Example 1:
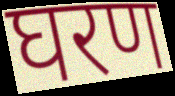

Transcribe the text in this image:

घरण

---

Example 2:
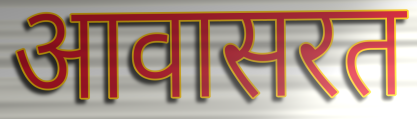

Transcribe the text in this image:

आवासरत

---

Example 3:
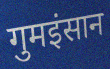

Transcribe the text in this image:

गुमइंसान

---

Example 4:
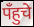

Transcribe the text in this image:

पँहुचे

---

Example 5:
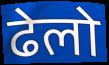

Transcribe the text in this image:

ढेलो